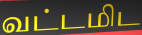
வட்டமிட